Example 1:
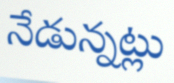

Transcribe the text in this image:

నేడున్నట్లు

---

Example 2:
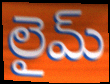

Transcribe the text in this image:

లైమ్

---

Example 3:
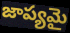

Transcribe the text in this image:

జాప్యమై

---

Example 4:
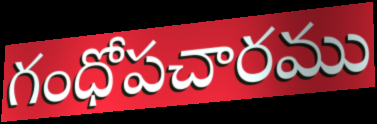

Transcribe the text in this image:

గంధోపచారము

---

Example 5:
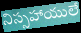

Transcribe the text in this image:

నిస్సహాయులే